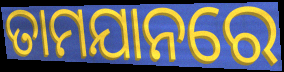
ତାମଯାନରେ